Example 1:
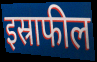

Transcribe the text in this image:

इस्राफील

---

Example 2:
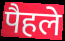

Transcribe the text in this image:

पैहले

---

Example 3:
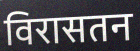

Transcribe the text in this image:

विरासतन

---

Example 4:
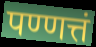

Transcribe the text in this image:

पण्णत्तं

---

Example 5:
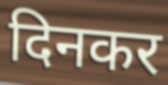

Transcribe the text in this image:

दिनकर